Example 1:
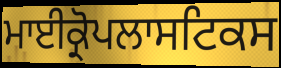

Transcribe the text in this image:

ਮਾਈਕ੍ਰੋਪਲਾਸਟਿਕਸ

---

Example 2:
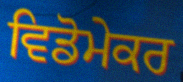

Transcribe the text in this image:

ਵਿਡੋਮੇਕਰ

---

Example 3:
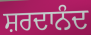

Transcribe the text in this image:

ਸ਼ਰਦਾਨੰਦ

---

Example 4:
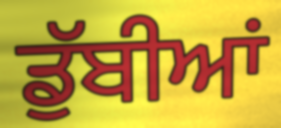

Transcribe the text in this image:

ਡੁੱਬੀਆਂ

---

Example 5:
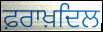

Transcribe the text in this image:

ਫ਼ਰਾਖ਼ਦਿਲ